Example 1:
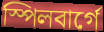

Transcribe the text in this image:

স্পিলবাৰ্গে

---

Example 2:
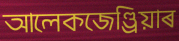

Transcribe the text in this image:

আলেকজেণ্ড্ৰিয়াৰ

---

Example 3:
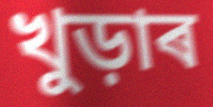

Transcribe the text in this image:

খুড়াৰ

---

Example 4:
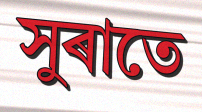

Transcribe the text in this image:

সুৰাতে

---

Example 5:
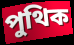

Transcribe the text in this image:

পুথিক